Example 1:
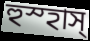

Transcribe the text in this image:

হুস্হাস্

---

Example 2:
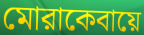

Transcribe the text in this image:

মোরাকেবায়ে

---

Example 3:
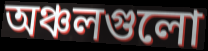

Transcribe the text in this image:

অঞ্চলগুলো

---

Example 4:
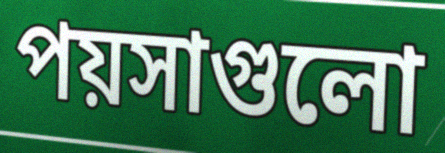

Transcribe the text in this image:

পয়সাগুলো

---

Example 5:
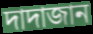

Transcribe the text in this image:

দাদাজান